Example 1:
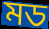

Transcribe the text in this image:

মড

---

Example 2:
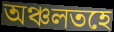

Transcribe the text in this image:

অঞ্চলতহে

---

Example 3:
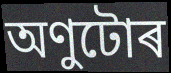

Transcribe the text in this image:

অণুটোৰ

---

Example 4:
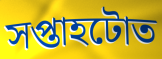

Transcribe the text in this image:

সপ্তাহটোত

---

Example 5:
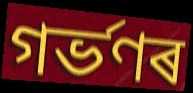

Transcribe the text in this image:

গৰ্ভণৰ